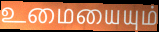
உமையையும்